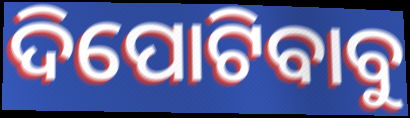
ଦିପୋଟିବାବୁ